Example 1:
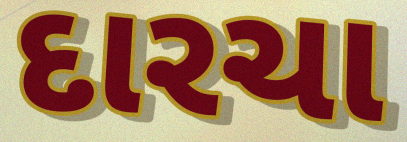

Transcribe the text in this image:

દારચા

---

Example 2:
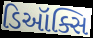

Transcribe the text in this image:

ડિઑક્સિ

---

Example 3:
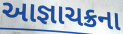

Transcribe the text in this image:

આજ્ઞાચક્રના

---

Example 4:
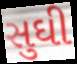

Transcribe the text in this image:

સુઘી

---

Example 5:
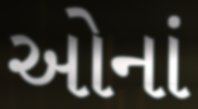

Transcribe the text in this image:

ઓનાં